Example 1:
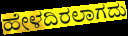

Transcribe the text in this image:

ಹೇಳದಿರಲಾಗದು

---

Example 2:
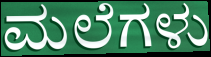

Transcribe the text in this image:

ಮಲೆಗಳು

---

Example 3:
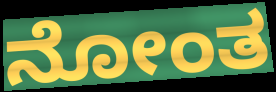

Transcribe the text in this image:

ನೋಂತ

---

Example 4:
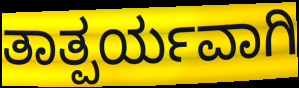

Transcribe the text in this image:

ತಾತ್ಪರ್ಯವಾಗಿ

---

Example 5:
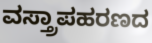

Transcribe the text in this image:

ವಸ್ತ್ರಾಪಹರಣದ